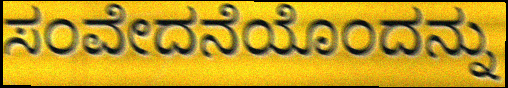
ಸಂವೇದನೆಯೊಂದನ್ನು